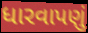
ધારવાપણું